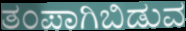
ತಂಪಾಗಿಬಿಡುವ